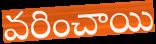
వరించాయి